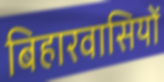
बिहारवासियों